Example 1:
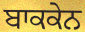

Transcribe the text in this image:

ਬਾਕਕੇਨ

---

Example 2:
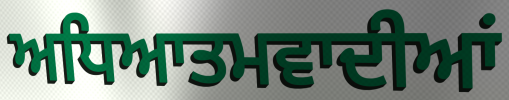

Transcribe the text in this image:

ਅਧਿਆਤਮਵਾਦੀਆਂ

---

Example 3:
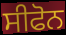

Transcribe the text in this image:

ਸੀਫੋਨ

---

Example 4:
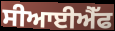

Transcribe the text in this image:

ਸੀਆਈਐੱਫ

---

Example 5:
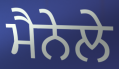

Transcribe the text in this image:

ਮੈਨੇਲੇ